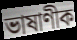
ভাষাণীক